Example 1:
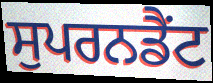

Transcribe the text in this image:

ਸੁਪਰਨਡੈਂਟ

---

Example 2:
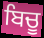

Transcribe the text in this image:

ਬਿਚੂ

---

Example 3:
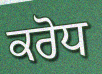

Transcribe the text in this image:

ਕਰੋਧ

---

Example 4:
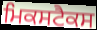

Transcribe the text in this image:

ਮਿਕਸਟੈਕਸ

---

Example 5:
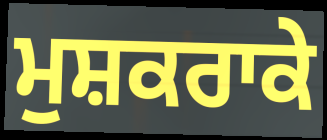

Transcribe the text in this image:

ਮੁਸ਼ਕਰਾਕੇ